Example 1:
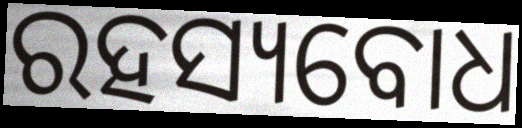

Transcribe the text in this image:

ରହସ୍ୟବୋଧ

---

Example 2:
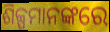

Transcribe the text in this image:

ଶିଳ୍ପମାନଙ୍କରେ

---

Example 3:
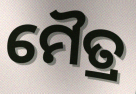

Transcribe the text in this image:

ମୈତ୍ର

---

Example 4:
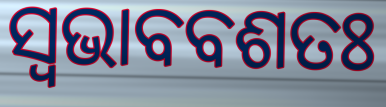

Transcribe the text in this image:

ସ୍ୱଭାବବଶତଃ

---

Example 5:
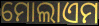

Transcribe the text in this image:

ମୋଲାଏମ